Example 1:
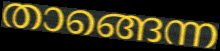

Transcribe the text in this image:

താങ്ങെന്ന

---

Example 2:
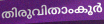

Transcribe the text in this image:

തിരുവിതാംകൂർ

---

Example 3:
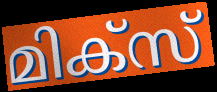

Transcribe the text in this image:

മിക്സ്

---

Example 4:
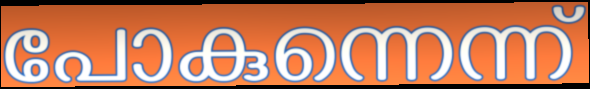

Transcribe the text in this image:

പോകുന്നെന്ന്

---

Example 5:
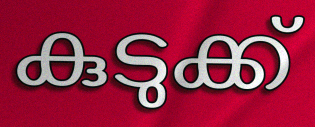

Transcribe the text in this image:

കുടുക്ക്